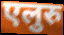
एलुरु